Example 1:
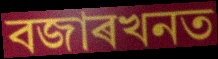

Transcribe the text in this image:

বজাৰখনত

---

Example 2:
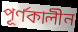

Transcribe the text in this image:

পূৰ্ণকালীন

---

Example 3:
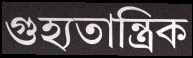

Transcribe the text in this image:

গুহ্যতান্ত্ৰিক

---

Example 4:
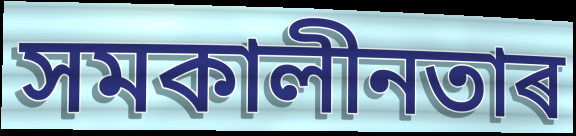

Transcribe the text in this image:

সমকালীনতাৰ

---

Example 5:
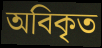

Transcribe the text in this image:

অবিকৃত